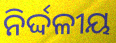
ନିର୍ଦ୍ଦଳୀୟ